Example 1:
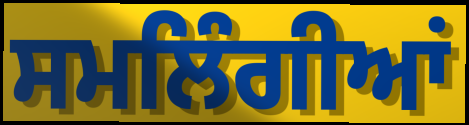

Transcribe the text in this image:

ਸਮਲਿੰਗੀਆਂ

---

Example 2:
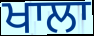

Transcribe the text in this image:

ਖਾਲਾ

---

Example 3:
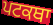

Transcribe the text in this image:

ਪਟਕਥਾ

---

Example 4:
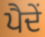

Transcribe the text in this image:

ਪੈਦੇਂ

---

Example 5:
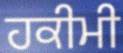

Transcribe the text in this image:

ਹਕੀਮੀ